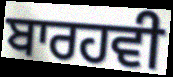
ਬਾਰਹਵੀ